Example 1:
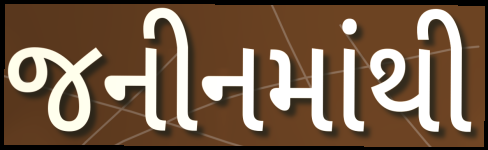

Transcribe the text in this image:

જનીનમાંથી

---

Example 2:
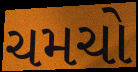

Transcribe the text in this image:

ચમચો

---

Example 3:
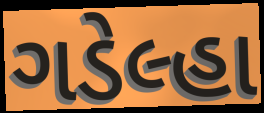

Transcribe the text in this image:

ગડેલ્હા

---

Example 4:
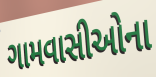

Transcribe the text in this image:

ગામવાસીઓના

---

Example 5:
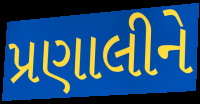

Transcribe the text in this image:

પ્રણાલીને